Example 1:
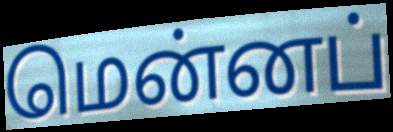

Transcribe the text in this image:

மென்னப்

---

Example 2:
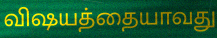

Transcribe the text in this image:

விஷயத்தையாவது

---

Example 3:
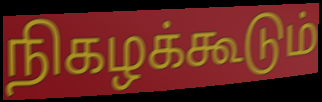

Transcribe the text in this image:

நிகழக்கூடும்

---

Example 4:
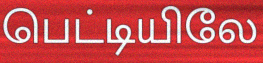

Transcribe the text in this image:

பெட்டியிலே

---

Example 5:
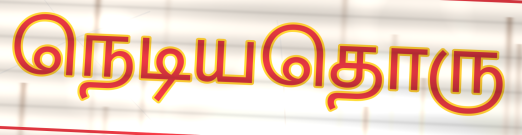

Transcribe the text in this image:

நெடியதொரு